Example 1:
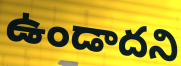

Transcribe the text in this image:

ఉండాదని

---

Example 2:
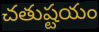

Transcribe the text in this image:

చతుష్టయం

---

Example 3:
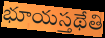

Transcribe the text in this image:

భూయస్తథేతి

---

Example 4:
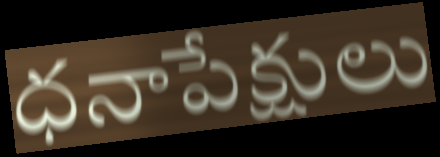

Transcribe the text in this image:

ధనాపేక్షులు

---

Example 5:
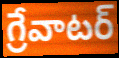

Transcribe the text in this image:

గ్రేవాటర్